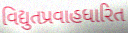
વિદ્યુતપ્રવાહધારિત